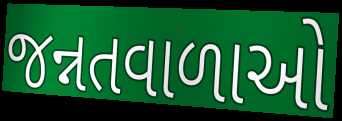
જન્નતવાળાઓ